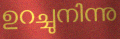
ഉറച്ചുനിന്നു